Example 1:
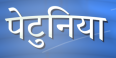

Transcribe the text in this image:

पेटुनिया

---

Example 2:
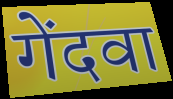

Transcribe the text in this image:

गेंदवा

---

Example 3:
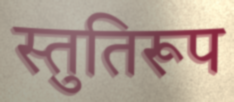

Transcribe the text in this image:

स्तुतिरूप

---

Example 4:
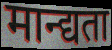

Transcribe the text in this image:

मान्द्यता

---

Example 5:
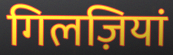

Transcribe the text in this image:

गिलज़ियां